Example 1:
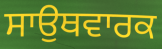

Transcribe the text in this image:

ਸਾਉਥਵਾਰਕ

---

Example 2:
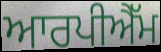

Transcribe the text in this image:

ਆਰਪੀਐੱਮ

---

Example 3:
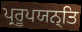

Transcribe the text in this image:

ਪ੍ਰਰੂਪਯਨ੍ਤਿ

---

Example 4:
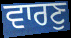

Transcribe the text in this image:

ਵਾਰਣੁ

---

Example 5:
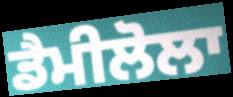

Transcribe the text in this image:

ਡੈਮੀਲੋਲਾ